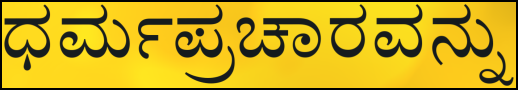
ಧರ್ಮಪ್ರಚಾರವನ್ನು